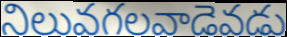
నిలువగలవాడెవడు